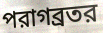
পরাগব্রতর